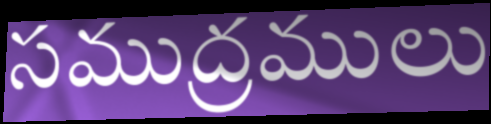
సముద్రములు